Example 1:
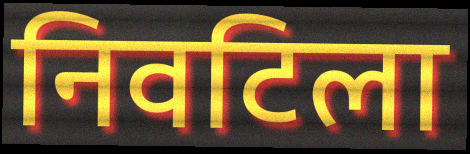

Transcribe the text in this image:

निवटिला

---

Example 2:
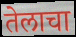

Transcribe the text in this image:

तेलाचा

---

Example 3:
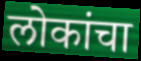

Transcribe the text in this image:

लोकांचा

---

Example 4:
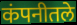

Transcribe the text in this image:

कंपनीतले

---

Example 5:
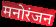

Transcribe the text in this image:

मनोरंजन